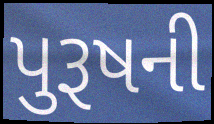
પુરૂષની